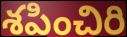
శపించిరి